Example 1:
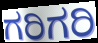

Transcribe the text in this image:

ಗರಿಗರಿ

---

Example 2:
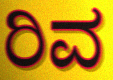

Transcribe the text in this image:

ರಿವ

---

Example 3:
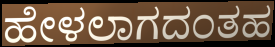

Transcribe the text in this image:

ಹೇಳಲಾಗದಂತಹ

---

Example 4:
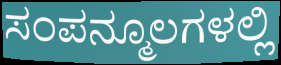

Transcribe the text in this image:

ಸಂಪನ್ಮೂಲಗಳಲ್ಲಿ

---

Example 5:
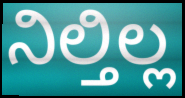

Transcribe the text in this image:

ನಿಲ್ತಿಲ್ಲ